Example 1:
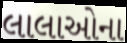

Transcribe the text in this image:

લાલાઓના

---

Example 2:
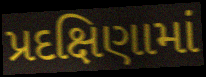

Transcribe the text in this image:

પ્રદક્ષિણામાં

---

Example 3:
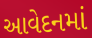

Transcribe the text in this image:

આવેદનમાં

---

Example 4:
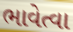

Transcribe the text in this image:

ભાવેત્વા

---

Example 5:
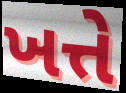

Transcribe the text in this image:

ખત્તે